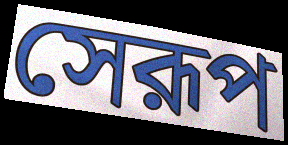
সেরূপ